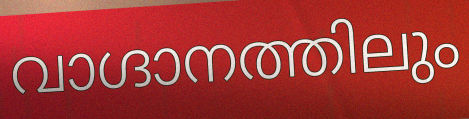
വാഗ്ദാനത്തിലും